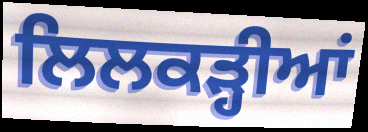
ਲਿਲਕੜ੍ਹੀਆਂ